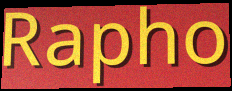
Rapho